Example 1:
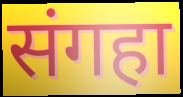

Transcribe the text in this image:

संगहा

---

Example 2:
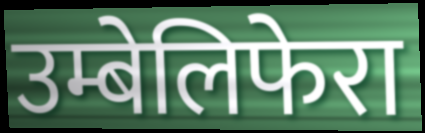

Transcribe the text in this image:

उम्बेलिफेरा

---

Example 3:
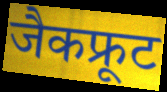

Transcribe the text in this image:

जैकफ्रूट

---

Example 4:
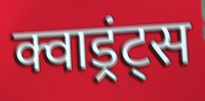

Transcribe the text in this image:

क्वाड्रंट्स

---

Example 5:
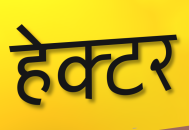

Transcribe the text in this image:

हेक्‍टर